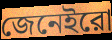
জেনেইরো